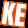
KE